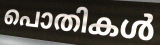
പൊതികൾ